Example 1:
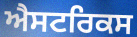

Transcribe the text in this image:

ਐਸਟਰਿਕਸ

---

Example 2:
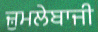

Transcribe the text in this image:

ਜ਼ੁਮਲੇਬਾਜੀ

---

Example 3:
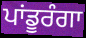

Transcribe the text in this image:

ਪਾਂਡੂਰੰਗਾ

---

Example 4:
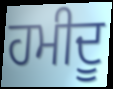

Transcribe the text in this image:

ਹਮੀਦੂ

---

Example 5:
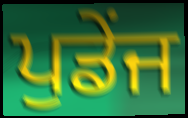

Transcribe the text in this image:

ਪੁਡੇਂਜ